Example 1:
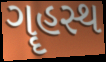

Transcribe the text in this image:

ગૄહસ્થ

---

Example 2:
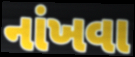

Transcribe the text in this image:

નાંખવા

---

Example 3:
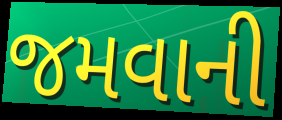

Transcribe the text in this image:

જમવાની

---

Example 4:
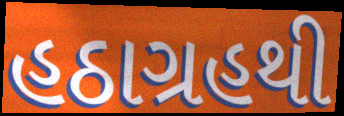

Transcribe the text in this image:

હઠાગ્રહથી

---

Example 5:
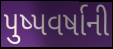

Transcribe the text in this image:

પુષ્પવર્ષાની